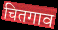
चितगाव